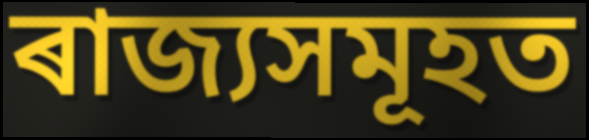
ৰাজ্যসমূহত